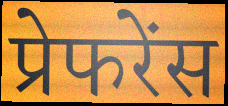
प्रेफरेंस